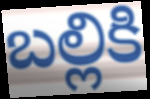
బల్లికి